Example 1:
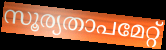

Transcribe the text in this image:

സൂര്യതാപമേറ്റ്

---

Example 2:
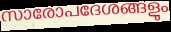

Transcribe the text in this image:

സാരോപദേശങ്ങളും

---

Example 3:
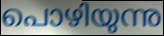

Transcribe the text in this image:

പൊഴിയുന്നു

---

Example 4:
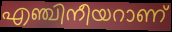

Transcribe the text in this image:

എഞ്ചിനീയറാണ്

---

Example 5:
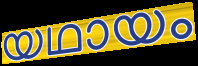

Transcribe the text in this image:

യഥായം